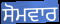
ਸੋਮਵਾਰ